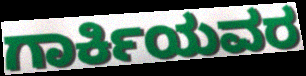
ಗಾರ್ಕಿಯವರ